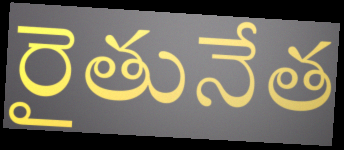
రైతునేత